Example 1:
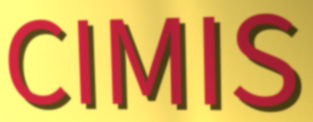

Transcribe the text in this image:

CIMIS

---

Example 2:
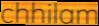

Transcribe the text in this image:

chhilam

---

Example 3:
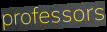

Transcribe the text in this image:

professors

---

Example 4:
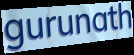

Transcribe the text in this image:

gurunath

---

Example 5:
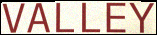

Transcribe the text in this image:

VALLEY